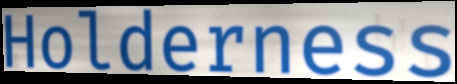
Holderness